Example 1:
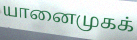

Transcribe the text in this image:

யானைமுகக்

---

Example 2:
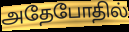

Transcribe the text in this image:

அதேபோதில்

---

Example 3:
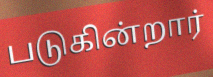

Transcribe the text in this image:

படுகின்றார்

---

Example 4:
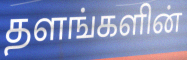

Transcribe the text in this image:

தளங்களின்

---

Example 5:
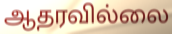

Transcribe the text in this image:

ஆதரவில்லை